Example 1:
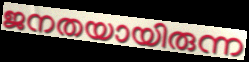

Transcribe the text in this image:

ജനതയായിരുന്ന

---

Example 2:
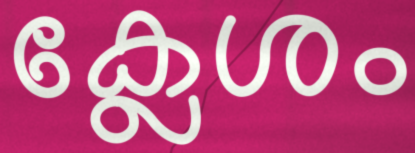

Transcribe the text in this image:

ക്ലേശം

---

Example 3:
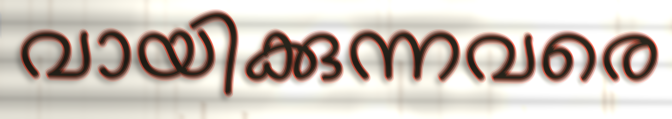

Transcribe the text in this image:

വായിക്കുന്നവരെ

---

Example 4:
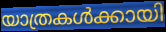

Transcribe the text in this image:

യാത്രകൾക്കായി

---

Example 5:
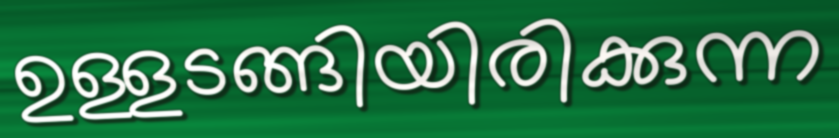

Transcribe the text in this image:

ഉള്ളടങ്ങിയിരിക്കുന്ന